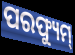
ପରଫ୍ୟୁମ୍